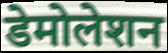
डेमोलेशन